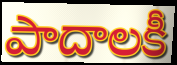
పాదాలకీ